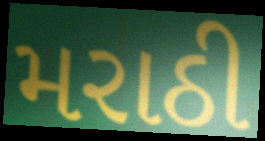
મરાઠી